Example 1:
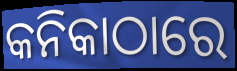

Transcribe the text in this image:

କନିକାଠାରେ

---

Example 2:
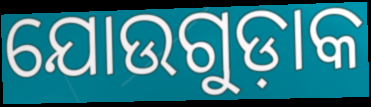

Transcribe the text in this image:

ଯୋଉଗୁଡ଼ାକ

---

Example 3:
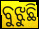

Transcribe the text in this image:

ବୁଝୁଛି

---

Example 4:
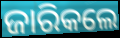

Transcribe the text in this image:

ଜାରିକଲେ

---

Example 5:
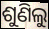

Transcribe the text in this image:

ଶୁଣିଲୁ